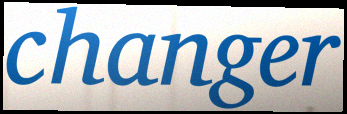
changer